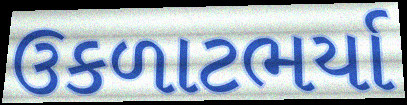
ઉકળાટભર્યા